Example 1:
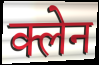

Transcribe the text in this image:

क्लेन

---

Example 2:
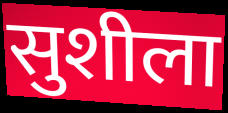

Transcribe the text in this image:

सुशीला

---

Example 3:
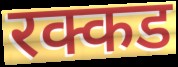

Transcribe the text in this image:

रक्कड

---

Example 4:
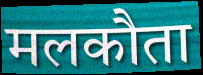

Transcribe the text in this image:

मलकौता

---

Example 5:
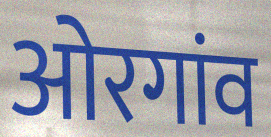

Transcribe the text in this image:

ओरगांव